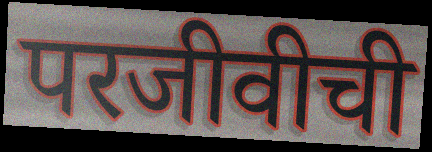
परजीवीची